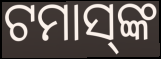
ଟମାସ୍‌ଙ୍କ